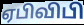
ஏபிவிபி